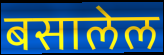
बसालेल